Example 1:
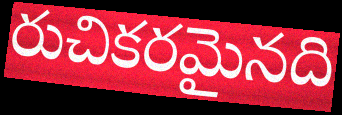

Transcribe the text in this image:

రుచికరమైనది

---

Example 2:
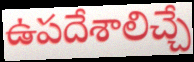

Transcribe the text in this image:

ఉపదేశాలిచ్చే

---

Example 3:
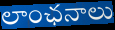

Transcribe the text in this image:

లాంఛనాలు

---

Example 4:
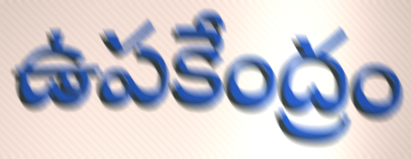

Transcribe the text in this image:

ఉపకేంద్రం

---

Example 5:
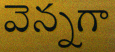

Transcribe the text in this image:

వెన్నగా